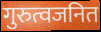
गुरुत्वजनित